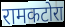
रामकटोरा